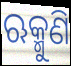
ଋକ୍ମୁଣି